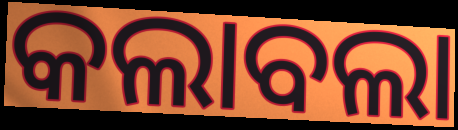
କଲାବଲା